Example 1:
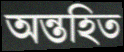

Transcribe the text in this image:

অন্তহিত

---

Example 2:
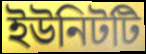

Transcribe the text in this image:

ইউনিটটি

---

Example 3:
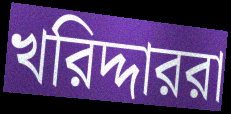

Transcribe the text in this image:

খরিদ্দাররা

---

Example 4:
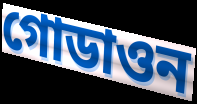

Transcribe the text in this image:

গোডাওন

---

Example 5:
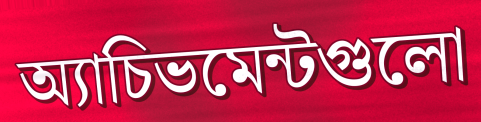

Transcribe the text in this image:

অ্যাচিভমেন্টগুলো